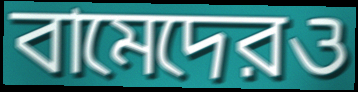
বামেদেরও